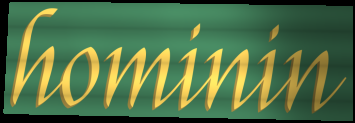
hominin